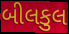
બીલકુલ